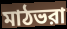
মাঠভরা